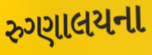
રુગ્ણાલયના